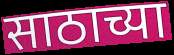
साठाच्या